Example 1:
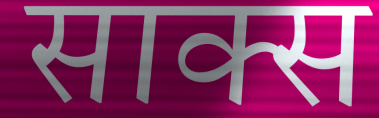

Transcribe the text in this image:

साक्स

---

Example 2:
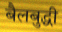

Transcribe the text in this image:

बैलबुद्धी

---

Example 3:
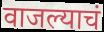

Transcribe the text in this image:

वाजल्याचं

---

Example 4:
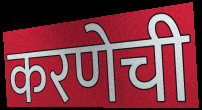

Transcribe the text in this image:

करणेची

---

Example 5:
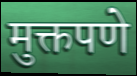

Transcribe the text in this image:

मुक्तपणे